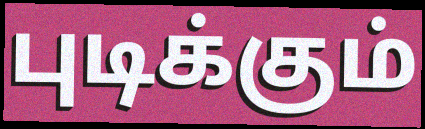
புடிக்கும்